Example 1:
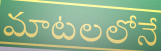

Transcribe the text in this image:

మాటలలోనే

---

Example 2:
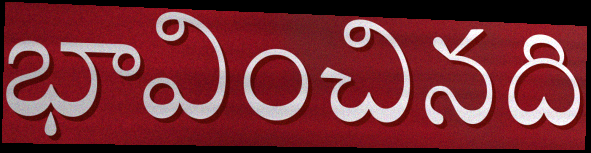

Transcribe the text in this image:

భావించినది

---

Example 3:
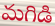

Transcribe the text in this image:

మగిడి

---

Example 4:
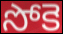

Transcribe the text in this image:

సోకె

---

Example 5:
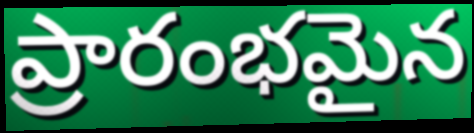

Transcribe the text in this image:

ప్రారంభమైన